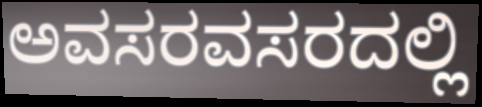
ಅವಸರವಸರದಲ್ಲಿ